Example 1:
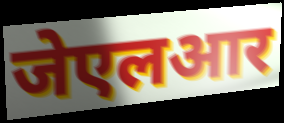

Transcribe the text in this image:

जेएलआर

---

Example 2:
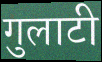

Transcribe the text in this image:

गुलाटी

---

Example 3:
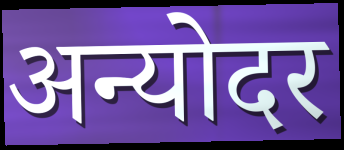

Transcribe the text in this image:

अन्योदर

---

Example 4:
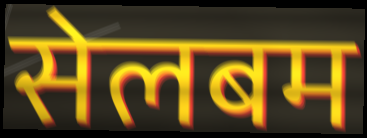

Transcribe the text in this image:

सेलबम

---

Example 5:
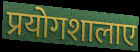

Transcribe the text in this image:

प्रयोगशालाए